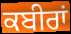
ਕਬੀਰਾਂ